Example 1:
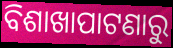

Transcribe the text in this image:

ବିଶାଖାପାଟଣାରୁ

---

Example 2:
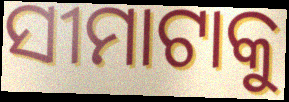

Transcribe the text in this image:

ସୀମାଟାକୁ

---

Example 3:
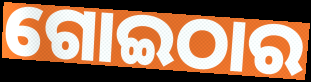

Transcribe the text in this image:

ଗୋଇଠାର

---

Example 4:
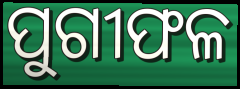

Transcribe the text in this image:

ପୁଗୀଫଳ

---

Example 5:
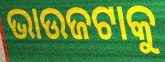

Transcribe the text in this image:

ଭାଉଜଟାକୁ